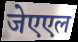
जेएएल